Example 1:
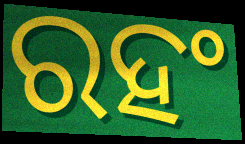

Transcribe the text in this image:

ରହଂ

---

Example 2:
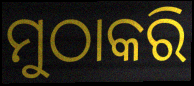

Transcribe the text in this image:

ମୁଠାକରି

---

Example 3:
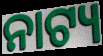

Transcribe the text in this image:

ନାଟ୍ୟ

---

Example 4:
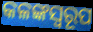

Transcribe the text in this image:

କଳଙ୍କସ୍ୱରୂପ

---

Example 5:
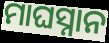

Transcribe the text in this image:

ମାଘସ୍ନାନ